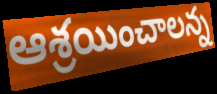
ఆశ్రయించాలన్న